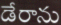
డేరాను